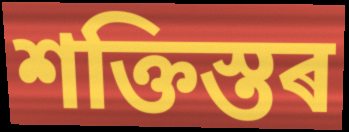
শক্তিস্তৰ